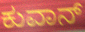
ಕುವಾನ್